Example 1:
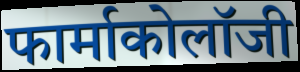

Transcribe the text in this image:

फार्माकोलॉजी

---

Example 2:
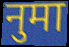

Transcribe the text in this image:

नुमा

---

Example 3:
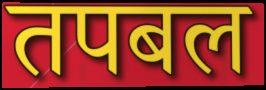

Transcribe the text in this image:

तपबल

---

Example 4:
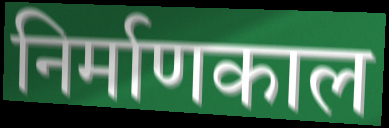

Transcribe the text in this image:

निर्माणकाल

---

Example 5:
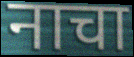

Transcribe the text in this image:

नाचा